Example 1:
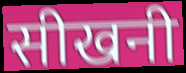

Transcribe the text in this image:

सीखनी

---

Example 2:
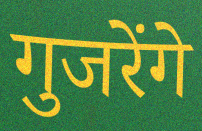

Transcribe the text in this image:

गुजरेंगे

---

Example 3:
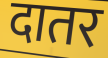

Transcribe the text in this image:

दातर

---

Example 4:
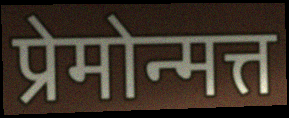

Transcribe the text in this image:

प्रेमोन्मत्त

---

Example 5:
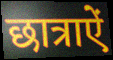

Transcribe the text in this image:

छात्राऐं